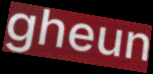
gheun